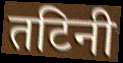
तटिनी